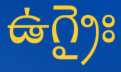
ఉగ్రైః